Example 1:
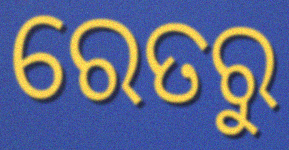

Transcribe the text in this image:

ରେତରୁ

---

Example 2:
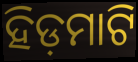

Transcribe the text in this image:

ହିଡ଼ମାଟି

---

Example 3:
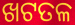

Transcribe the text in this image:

ଖଟତଳ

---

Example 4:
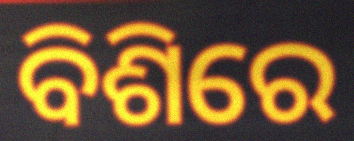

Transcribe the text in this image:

ବିଶିରେ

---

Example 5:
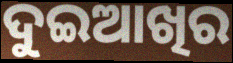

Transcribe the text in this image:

ଦୁଇଆଖିର